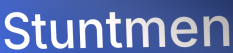
Stuntmen